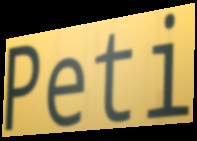
Peti